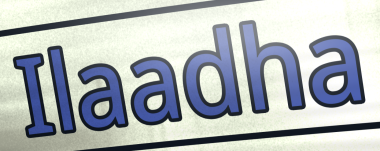
Ilaadha